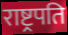
राष्ट्र्रपति